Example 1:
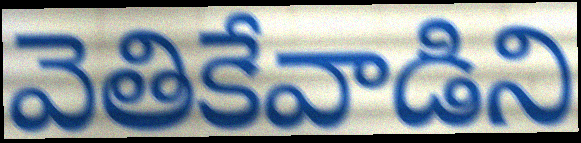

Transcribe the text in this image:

వెతికేవాడిని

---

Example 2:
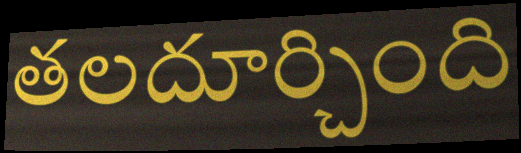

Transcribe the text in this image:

తలదూర్చింది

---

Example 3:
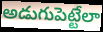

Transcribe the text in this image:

అడుగుపెట్టేలా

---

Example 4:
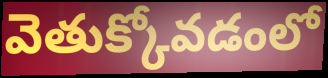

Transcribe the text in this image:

వెతుక్కోవడంలో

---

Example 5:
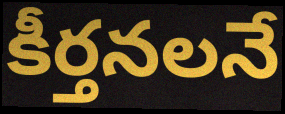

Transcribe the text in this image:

కీర్తనలనే